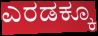
ಎರಡಕ್ಕೂ